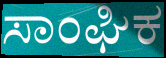
ಸಾಂಘಿಕ